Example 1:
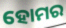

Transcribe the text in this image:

ହୋମର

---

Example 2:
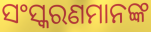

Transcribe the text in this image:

ସଂସ୍କରଣମାନଙ୍କ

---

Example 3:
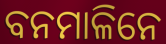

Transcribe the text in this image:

ବନମାଳିନେ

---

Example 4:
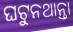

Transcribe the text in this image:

ଘଟୁନଥାନ୍ତା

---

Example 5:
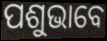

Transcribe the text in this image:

ପଶୁଭାବେ